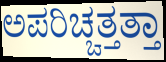
ಅಪರಿಚ್ಚತ್ತತ್ತಾ